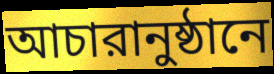
আচারানুষ্ঠানে